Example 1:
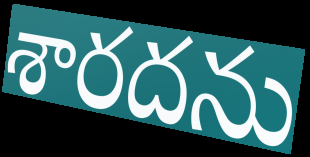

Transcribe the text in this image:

శారదను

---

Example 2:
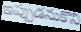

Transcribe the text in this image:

ఇప్పుడనుకొని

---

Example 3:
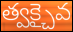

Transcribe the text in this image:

త్వక్చైవ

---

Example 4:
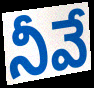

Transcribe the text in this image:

నీవే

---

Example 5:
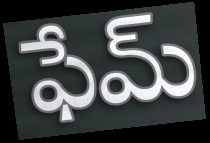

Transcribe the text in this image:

ఫేమ్